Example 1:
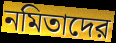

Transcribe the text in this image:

নমিতাদের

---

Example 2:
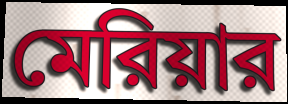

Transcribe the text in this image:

মেরিয়ার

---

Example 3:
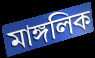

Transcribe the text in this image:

মাঙ্গলিক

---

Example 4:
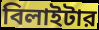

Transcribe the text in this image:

বিলাইটার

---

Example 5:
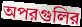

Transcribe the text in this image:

অপরগুলির